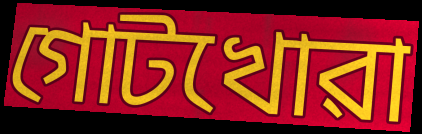
গোটখোৱা